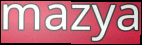
mazya